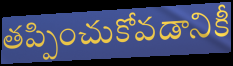
తప్పించుకోవడానికీ